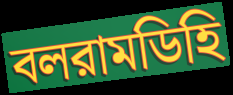
বলরামডিহি